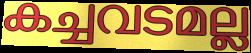
കച്ചവടമല്ല